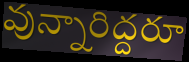
వున్నారిద్దరూ